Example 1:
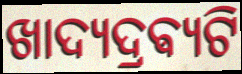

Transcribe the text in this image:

ଖାଦ୍ୟଦ୍ରଵ୍ୟଟି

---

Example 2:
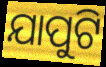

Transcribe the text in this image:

ଯାପୁଟି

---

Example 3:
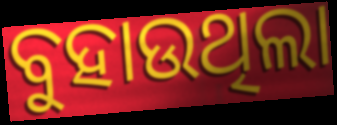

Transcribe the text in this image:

ବୁହାଉଥିଲା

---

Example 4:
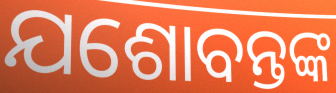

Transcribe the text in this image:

ଯଶୋବନ୍ତଙ୍କ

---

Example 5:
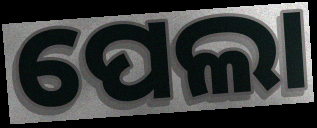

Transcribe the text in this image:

ପେଲା